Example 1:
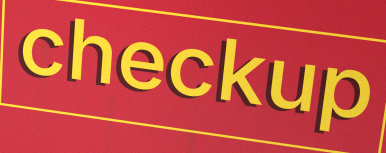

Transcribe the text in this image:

checkup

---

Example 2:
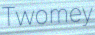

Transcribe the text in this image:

Twomey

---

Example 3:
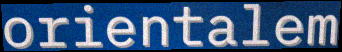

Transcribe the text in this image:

orientalem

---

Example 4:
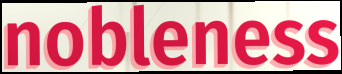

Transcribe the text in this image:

nobleness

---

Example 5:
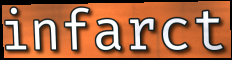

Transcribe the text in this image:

infarct